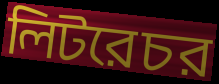
লিটরেচর